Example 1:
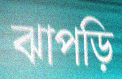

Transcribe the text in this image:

ঝাপড়ি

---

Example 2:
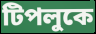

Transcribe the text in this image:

টিপলুকে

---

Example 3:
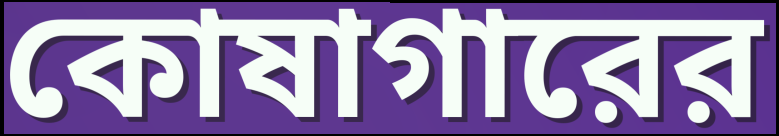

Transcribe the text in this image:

কোষাগারের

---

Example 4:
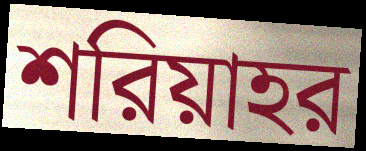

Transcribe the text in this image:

শরিয়াহর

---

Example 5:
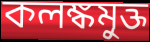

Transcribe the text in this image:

কলঙ্কমুক্ত